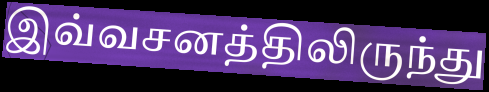
இவ்வசனத்திலிருந்து